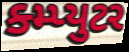
ક્મ્પ્યુટર